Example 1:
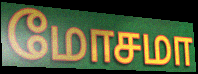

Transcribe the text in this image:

மோசமா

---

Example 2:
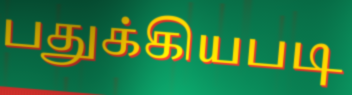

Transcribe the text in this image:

பதுக்கியபடி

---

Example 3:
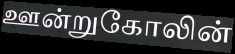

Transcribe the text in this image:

ஊன்றுகோலின்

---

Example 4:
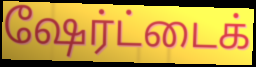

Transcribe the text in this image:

ஷேர்ட்டைக்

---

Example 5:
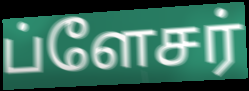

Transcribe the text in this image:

ப்ளேசர்